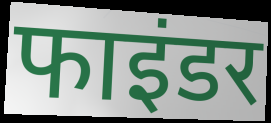
फाइंडर